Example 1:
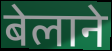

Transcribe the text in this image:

बेलाने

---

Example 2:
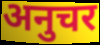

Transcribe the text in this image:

अनुचर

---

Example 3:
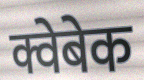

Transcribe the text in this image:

क्वेबेक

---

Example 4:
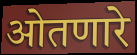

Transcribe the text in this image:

ओतणारे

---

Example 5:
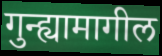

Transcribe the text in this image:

गुन्ह्यामागील